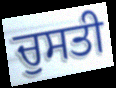
ਚੁਸਤੀ